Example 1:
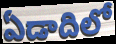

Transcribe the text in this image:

ఏడాదిలో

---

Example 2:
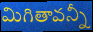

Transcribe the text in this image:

మిగితావన్నీ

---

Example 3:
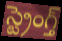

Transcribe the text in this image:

స్ట్రెంగ్త్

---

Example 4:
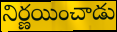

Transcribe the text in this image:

నిర్ణయించాడు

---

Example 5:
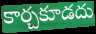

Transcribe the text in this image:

కార్చకూడదు